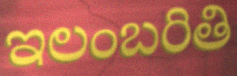
ఇలంబరితి